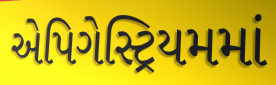
એપિગેસ્ટ્રિયમમાં